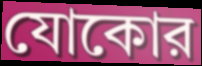
যোকোর